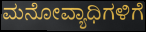
ಮನೋವ್ಯಾಧಿಗಳಿಗೆ